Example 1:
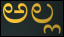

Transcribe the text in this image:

ಅಲ್ಲ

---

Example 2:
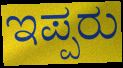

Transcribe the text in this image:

ಇಪ್ಪರು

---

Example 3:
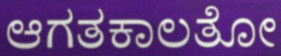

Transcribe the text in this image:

ಆಗತಕಾಲತೋ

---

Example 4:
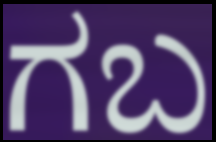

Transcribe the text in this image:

ಗಬ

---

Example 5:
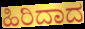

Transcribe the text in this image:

ಹಿರಿದಾದ